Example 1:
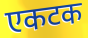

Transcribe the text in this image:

एकटक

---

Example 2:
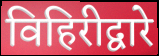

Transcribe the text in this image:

विहिरीद्वारे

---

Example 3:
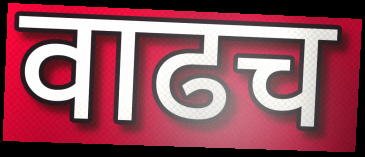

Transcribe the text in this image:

वाढच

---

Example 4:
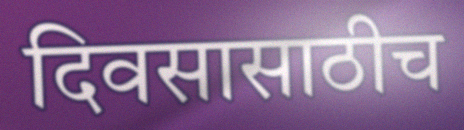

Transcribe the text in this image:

दिवसासाठीच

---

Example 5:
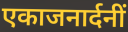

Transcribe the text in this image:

एकाजनार्दनीं